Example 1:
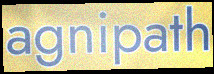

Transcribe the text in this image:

agnipath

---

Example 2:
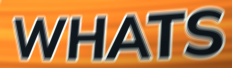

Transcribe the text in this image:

WHATS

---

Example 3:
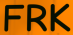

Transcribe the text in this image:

FRK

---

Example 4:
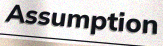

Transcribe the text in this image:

Assumption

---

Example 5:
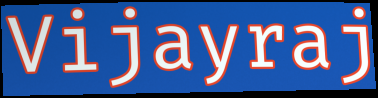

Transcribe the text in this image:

Vijayraj